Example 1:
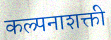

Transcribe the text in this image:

कल्पनाशक्ती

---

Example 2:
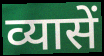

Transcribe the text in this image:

व्यासें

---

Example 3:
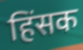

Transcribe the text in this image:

हिंसक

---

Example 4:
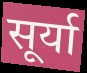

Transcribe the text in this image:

सूर्या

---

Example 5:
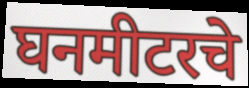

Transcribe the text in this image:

घनमीटरचे